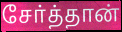
சேர்த்தான்